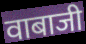
वाबाजी